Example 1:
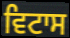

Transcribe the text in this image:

ਵਿਟਾਸ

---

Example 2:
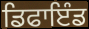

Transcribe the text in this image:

ਡਿਫਾਇੰਡ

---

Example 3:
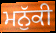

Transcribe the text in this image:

ਮਨੁੱਕੀ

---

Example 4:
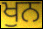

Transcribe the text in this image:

ਖੁਨ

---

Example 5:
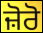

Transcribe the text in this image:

ਜ਼ੋਰੋ